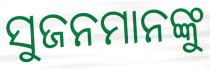
ସୁଜନମାନଙ୍କୁ